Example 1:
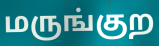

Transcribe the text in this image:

மருங்குற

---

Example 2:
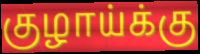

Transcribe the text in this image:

குழாய்க்கு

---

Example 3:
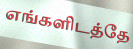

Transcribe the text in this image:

எங்களிடத்தே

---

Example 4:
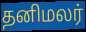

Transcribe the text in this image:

தனிமலர்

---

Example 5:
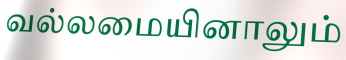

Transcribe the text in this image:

வல்லமையினாலும்